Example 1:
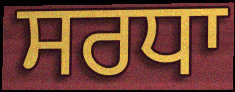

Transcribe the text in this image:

ਸਰਧਾ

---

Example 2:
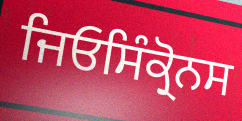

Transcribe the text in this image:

ਜਿਓਸਿੰਕ੍ਰੋਨਸ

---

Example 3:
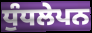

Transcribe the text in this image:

ਧੁੰਧਲੇਪਨ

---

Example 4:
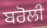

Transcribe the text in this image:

ਬਰੋਲੀ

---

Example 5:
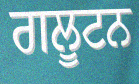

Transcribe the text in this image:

ਗਲੂਟਨ